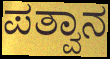
ಪತ್ವಾನ